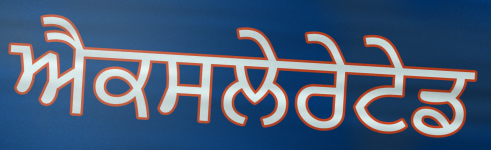
ਐਕਸਲੇਰੇਟੇਡ